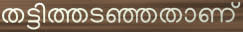
തട്ടിത്തടഞ്ഞതാണ്